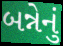
બન્નેનું